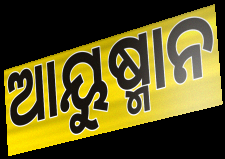
ଆୟୁଷ୍ମାନ